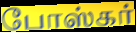
போஸ்கர்